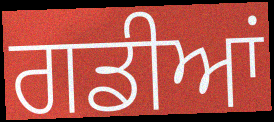
ਗਡੀਆਂ